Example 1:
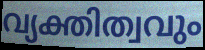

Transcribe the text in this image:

വ്യക്തിത്വവും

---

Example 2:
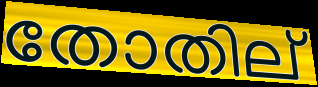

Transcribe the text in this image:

തോതില്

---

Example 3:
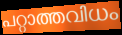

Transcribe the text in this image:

പറ്റാത്തവിധം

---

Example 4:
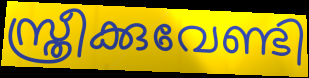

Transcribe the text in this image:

സ്ത്രീക്കുവേണ്ടി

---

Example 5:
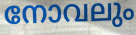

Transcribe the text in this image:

നോവലും